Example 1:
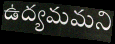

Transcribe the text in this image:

ఉద్యమమని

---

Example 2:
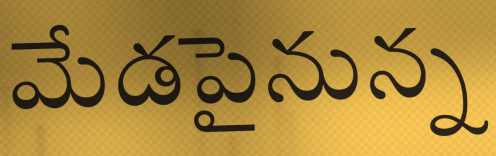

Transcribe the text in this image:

మేడపైనున్న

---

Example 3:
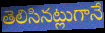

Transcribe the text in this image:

తెలిసినట్లుగానే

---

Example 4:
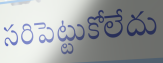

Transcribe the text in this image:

సరిపెట్టుకోలేదు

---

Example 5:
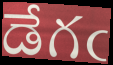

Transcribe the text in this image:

డేగఁ